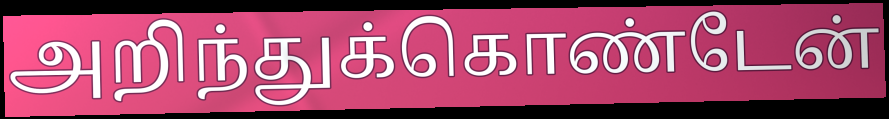
அறிந்துக்கொண்டேன்